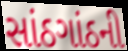
સાંઠગાંઠની